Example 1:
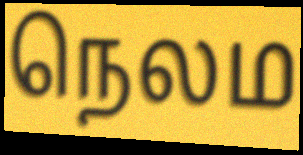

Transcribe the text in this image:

நெலம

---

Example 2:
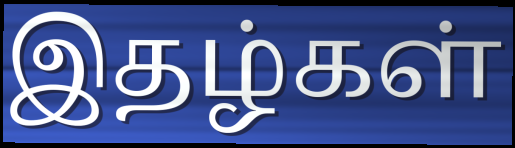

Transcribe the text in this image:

இதழ்கள்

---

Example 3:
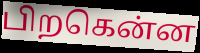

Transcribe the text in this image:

பிறகென்ன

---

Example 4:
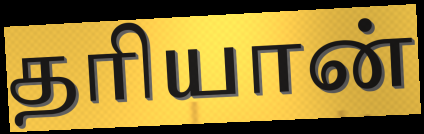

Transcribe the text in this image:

தரியான்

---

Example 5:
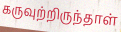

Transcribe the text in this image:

கருவுற்றிருந்தாள்